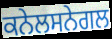
ਕਨੇਲਸਨੇਗਲ